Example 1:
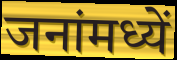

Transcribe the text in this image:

जनांमध्यें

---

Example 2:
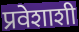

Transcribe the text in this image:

प्रवेशाशी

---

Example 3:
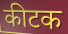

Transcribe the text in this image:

कीटक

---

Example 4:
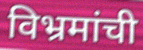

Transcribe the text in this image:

विभ्रमांची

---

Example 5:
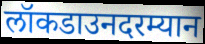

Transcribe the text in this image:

लॉकडाउनदरम्यान